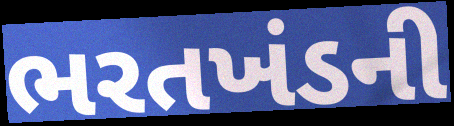
ભરતખંડની